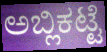
ಅಬ್ಲಿಕಟ್ಟೆ